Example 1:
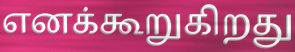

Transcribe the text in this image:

எனக்கூறுகிறது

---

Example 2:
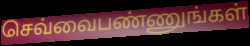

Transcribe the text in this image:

செவ்வைபண்ணுங்கள்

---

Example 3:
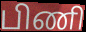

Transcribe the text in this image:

பிணி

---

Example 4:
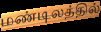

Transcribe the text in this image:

மண்டிலத்தில்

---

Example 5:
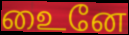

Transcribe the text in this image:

உைனே